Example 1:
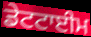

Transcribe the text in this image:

ਡੇਟਟਾਈਮ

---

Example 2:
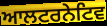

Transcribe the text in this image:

ਆਲਟਰਨੇਟਿਵ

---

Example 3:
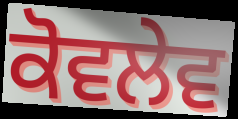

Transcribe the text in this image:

ਕੋਵਲੇਵ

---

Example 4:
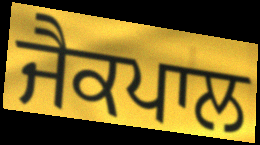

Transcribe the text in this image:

ਜੈਕਪਾਲ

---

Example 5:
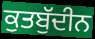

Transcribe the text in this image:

ਕੁਤਬੁੱਦੀਨ